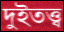
দুইতত্ত্ব